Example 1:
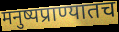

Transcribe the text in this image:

मनुष्यप्राण्यातच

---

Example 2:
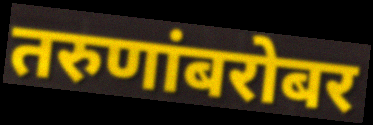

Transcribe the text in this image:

तरुणांबरोबर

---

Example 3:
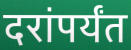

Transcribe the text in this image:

दरांपर्यंत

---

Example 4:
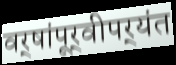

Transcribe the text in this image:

वर्षांपूर्वीपर्यंत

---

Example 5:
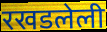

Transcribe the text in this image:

रखडलेली